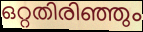
ഒറ്റതിരിഞ്ഞും